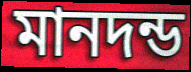
মানদন্ড